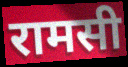
रामसी